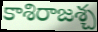
కాశిరాజశ్చ